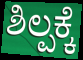
ಶಿಲ್ಪಕ್ಕೆ